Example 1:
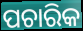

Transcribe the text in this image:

ପଚାରିକ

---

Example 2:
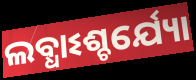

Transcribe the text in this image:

ଲବ୍ଧାଽଶ୍ଚର୍ଯ୍ୟୋ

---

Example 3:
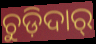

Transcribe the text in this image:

ଚୁଡ଼ିଦାର୍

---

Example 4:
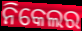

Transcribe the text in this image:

ନିକେଲର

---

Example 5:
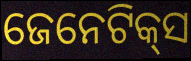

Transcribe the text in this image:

ଜେନେଟିକ୍‌ସ